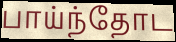
பாய்ந்தோட